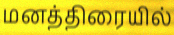
மனத்திரையில்